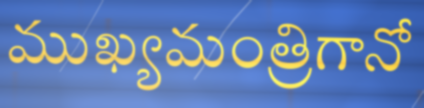
ముఖ్యమంత్రిగానో